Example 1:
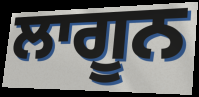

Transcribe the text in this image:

ਲਾਗੂਨ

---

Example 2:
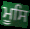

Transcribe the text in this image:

ਮੂਸਿ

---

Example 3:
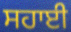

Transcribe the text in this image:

ਸਹਾਈ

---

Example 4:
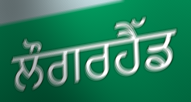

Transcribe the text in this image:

ਲੌਗਰਹੈੱਡ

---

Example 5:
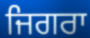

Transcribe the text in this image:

ਜਿਗਰਾ